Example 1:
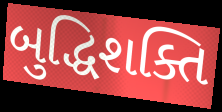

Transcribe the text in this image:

બુદ્ધિશક્તિ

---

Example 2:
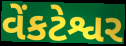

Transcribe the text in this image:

વેંકટેશ્વર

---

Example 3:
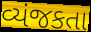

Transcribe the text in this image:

વ્યંજકતા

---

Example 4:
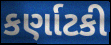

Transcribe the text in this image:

કર્ણાટકી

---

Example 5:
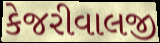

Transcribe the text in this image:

કેજરીવાલજી